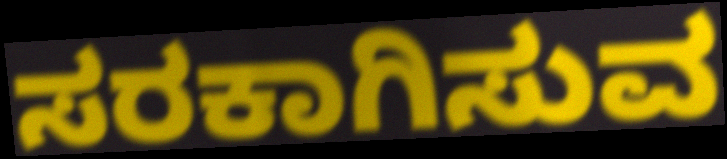
ಸರಕಾಗಿಸುವ